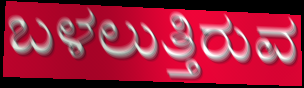
ಬಳಲುತ್ತಿರುವ